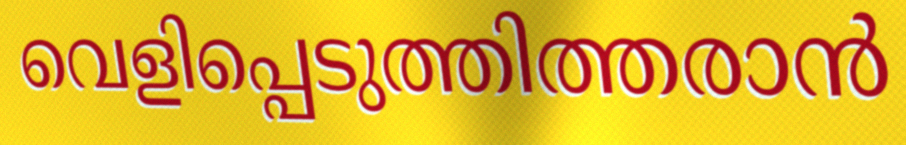
വെളിപ്പെടുത്തിത്തരാൻ